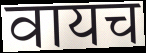
वायच